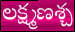
లక్ష్మణశ్చ